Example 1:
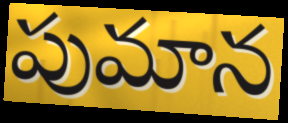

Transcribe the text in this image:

పుమాన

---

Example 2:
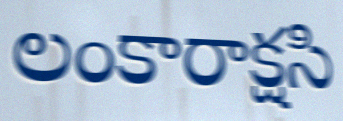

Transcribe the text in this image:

లంకారాక్షసి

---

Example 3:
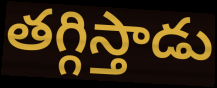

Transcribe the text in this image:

తగ్గిస్తాడు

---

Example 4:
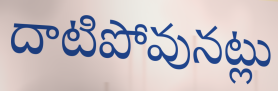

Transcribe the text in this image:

దాటిపోవునట్లు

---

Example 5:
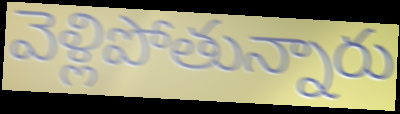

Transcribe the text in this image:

వెళ్లిపోతున్నారు